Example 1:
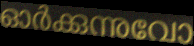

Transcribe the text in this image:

ഓർക്കുന്നുവോ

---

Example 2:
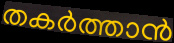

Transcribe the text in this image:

തകർത്താൻ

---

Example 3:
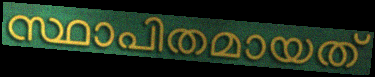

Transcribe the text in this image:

സ്ഥാപിതമായത്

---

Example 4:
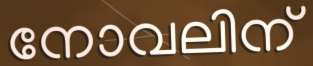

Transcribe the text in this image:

നോവലിന്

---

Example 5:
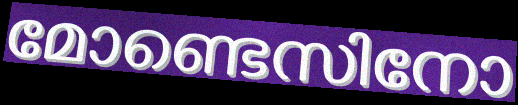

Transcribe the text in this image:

മോണ്ടെസിനോ